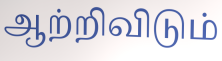
ஆற்றிவிடும்